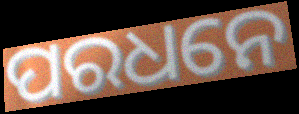
ପରଧନେ